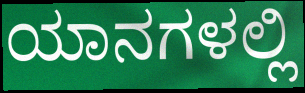
ಯಾನಗಳಲ್ಲಿ